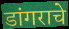
डांगराचे